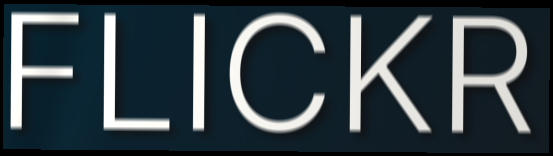
FLICKR